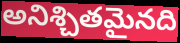
అనిశ్చితమైనది